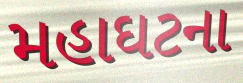
મહાઘટના